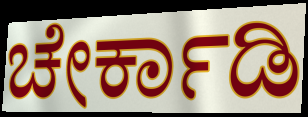
ಚೇರ್ಕಾಡಿ